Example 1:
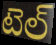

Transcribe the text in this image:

టెల్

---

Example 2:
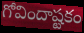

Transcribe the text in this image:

గోవిందాష్టకం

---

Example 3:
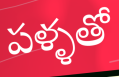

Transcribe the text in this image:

పళ్ళతో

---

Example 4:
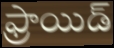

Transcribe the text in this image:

ఫ్రాయిడ్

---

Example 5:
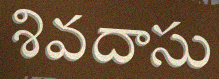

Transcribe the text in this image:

శివదాసు